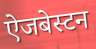
ऐजबेस्टन